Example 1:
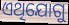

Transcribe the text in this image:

ଏଥିଯୋଗୁ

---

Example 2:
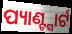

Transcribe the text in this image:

ପ୍ୟାଣ୍ଟ୍ସାର୍ଟ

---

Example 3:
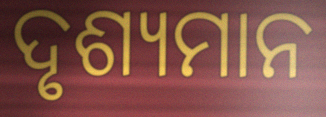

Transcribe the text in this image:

ଦୃଶ୍ୟମାନ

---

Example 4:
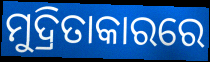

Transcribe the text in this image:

ମୁଦ୍ରିତାକାରରେ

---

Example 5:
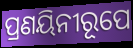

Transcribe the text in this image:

ପ୍ରଣୟିନୀରୂପେ